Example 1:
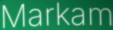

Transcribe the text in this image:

Markam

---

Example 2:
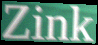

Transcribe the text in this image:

Zink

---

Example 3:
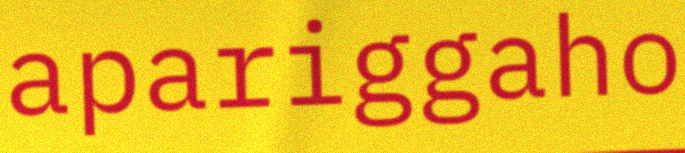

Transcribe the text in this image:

apariggaho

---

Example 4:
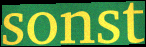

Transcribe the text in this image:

sonst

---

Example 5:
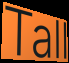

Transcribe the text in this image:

Tall